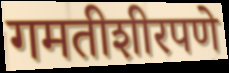
गमतीशीरपणे